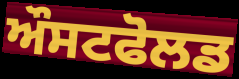
ਔਸਟਫੋਲਡ